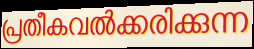
പ്രതീകവൽക്കരിക്കുന്ന